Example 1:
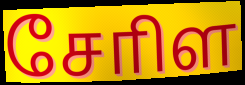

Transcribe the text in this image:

சேரிள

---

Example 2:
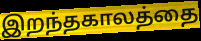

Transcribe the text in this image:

இறந்தகாலத்தை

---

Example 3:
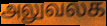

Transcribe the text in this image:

அலுவலக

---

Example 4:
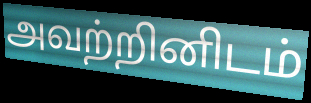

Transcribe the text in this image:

அவற்றினிடம்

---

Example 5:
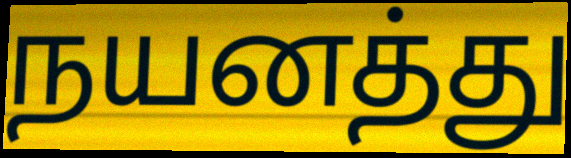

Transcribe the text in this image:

நயனத்து